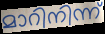
മാറിനിന്ന്